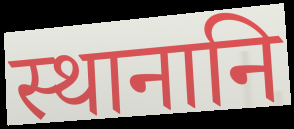
स्थानानि